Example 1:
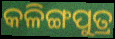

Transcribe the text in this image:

କଳିଙ୍ଗପୁତ୍ର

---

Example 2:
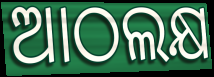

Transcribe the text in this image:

ଆଠଲକ୍ଷ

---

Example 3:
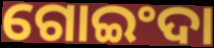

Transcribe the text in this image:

ଗୋଇଂଦା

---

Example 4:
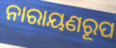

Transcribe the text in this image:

ନାରାୟଣରୂପ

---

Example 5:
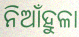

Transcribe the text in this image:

ନିଆଁହୁଳା